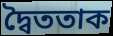
দ্বৈততাক